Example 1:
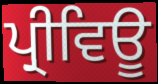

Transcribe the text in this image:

ਪ੍ਰੀਵਿਊ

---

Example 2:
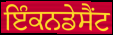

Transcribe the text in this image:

ਇੰਕਨਡੇਸੈਂਟ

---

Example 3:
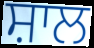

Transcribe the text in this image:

ਸ਼ਾਲ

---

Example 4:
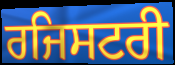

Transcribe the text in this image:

ਰਜਿਸਟਰੀ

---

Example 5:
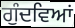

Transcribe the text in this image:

ਗੁੰਦਵਿਆਂ